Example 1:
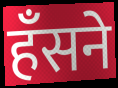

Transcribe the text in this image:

हँसने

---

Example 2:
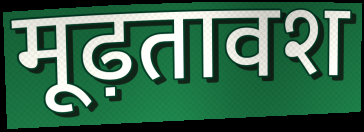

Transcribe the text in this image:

मूढ़तावश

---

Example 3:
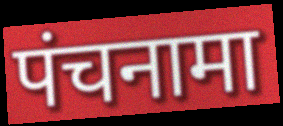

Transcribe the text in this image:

पंचनामा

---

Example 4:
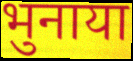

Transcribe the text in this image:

भुनाया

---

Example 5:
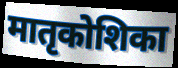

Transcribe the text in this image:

मातृकोशिका